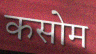
कसोम